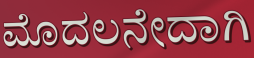
ಮೊದಲನೇದಾಗಿ